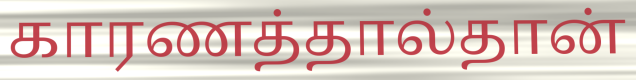
காரணத்தால்தான்